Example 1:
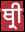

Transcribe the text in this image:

ਥ੍ਰੀ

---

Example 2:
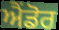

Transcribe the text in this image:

ਐਂਡੋਰ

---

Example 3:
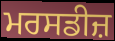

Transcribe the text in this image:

ਮਰਸਡੀਜ਼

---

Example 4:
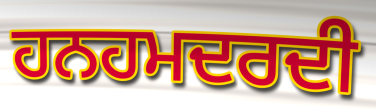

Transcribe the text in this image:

ਹਨਹਮਦਰਦੀ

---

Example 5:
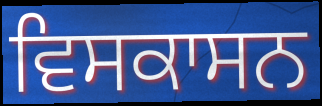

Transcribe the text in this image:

ਵਿਸਕਾਸਨ